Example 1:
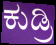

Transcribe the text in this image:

ಕುಡ್ರಿ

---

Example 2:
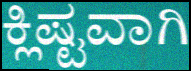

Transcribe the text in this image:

ಕ್ಲಿಷ್ಟವಾಗಿ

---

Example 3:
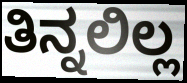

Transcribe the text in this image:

ತಿನ್ನಲಿಲ್ಲ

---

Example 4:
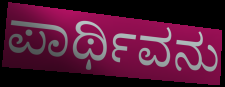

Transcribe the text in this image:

ಪಾರ್ಥಿವನು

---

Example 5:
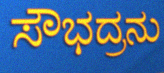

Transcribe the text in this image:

ಸೌಭದ್ರನು